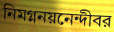
নিমগ্ননয়নেন্দীবর